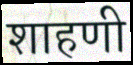
शाहणी